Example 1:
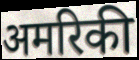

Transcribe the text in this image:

अमरिकी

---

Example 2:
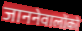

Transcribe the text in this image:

जाननेवालोंको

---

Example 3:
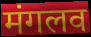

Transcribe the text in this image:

मंगलव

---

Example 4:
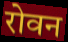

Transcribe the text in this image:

रोवन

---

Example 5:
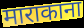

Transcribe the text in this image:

माराकाना